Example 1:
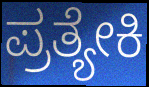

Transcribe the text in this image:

ಪ್ರತ್ಯೇಕಿ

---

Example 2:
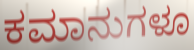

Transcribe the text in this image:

ಕಮಾನುಗಳೂ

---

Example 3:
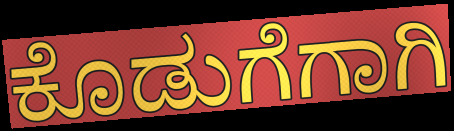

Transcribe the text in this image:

ಕೊಡುಗೆಗಾಗಿ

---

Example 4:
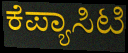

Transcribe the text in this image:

ಕೆಪ್ಯಾಸಿಟಿ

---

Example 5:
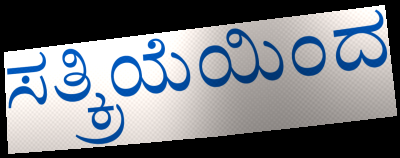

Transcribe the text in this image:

ಸತ್ಕ್ರಿಯೆಯಿಂದ